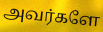
அவர்களே